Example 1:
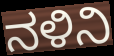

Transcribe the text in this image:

ನಳಿನಿ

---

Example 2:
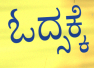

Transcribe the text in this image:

ಓದ್ಸಕ್ಕೆ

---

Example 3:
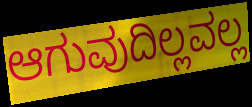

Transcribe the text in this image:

ಆಗುವುದಿಲ್ಲವಲ್ಲ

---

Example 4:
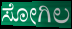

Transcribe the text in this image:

ಸೋಗಿಲ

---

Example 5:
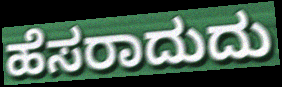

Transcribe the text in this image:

ಹೆಸರಾದುದು